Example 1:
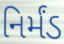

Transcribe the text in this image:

નિર્મંડ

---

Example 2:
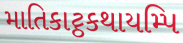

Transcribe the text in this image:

માતિકાટ્ઠકથાયમ્પિ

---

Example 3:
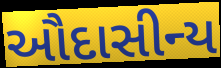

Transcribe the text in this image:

ઔદાસીન્ય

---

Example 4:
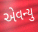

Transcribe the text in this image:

એવન્યુ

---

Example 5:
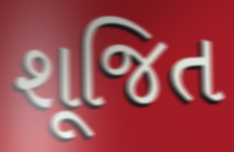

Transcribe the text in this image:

શૂજિત